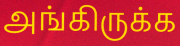
அங்கிருக்க